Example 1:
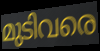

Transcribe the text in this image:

മുടിവരെ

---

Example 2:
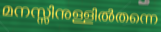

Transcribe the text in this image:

മനസ്സിനുള്ളിൽതന്നെ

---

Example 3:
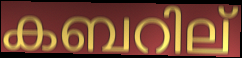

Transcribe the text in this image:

കബറില്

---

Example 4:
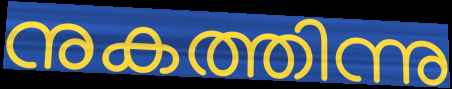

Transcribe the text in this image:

നുകത്തിന്നു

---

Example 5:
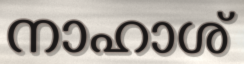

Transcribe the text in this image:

നാഹാശ്